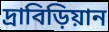
দ্রাবিড়িয়ান